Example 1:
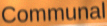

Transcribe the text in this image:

Communal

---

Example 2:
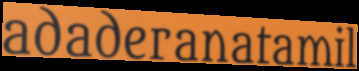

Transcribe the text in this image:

adaderanatamil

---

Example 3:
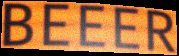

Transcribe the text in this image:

BEEER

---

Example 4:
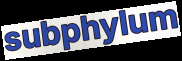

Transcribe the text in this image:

subphylum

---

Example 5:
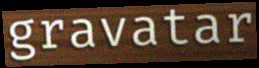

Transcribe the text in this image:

gravatar